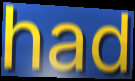
had